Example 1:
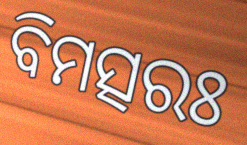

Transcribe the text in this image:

ବିମତ୍ସରଃ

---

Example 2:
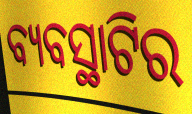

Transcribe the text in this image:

ବ୍ୟବସ୍ଥାଟିର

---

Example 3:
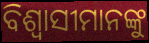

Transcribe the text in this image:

ବିଶ୍ୱାସୀମାନଙ୍କୁ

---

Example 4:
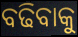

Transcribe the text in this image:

ବଢିବାକୁ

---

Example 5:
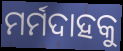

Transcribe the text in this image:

ମର୍ମଦାହକୁ